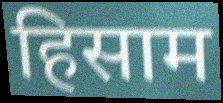
हिसाम